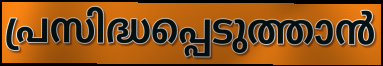
പ്രസിദ്ധപ്പെടുത്താൻ